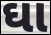
ઘા